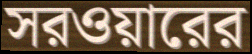
সরওয়ারের